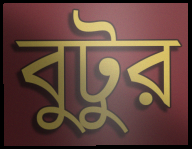
বুটুর